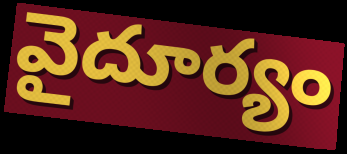
వైదూర్యం